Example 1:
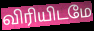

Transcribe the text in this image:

விரியிடமே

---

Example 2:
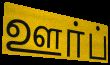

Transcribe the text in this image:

ஊர்ப்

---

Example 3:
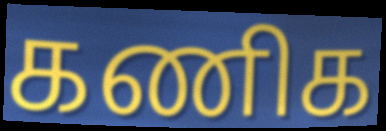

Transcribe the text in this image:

கணிக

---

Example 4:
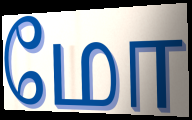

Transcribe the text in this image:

மோ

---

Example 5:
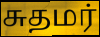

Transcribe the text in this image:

சுதமர்